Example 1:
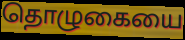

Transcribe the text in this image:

தொழுகையை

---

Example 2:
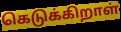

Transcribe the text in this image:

கெடுக்கிறாள்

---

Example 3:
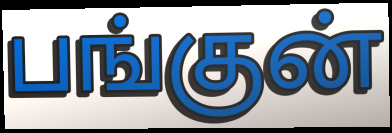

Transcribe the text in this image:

பங்குன்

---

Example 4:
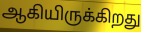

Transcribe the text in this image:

ஆகியிருக்கிறது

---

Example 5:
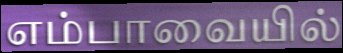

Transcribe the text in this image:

எம்பாவையில்